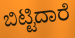
ಬಿಟ್ಟಿದಾರೆ